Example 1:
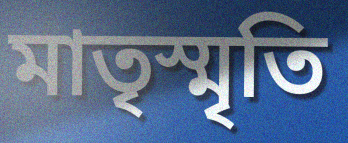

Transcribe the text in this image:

মাতৃস্মৃতি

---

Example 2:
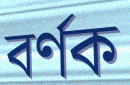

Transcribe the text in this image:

বর্ণক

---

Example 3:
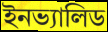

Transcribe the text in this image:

ইনভ্যালিড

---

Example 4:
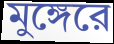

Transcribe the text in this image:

মুঙ্গেরে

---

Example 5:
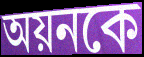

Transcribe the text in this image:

অয়নকে